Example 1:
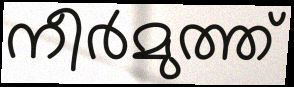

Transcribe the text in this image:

നീർമുത്ത്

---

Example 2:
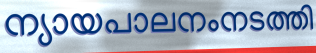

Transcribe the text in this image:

ന്യായപാലനംനടത്തി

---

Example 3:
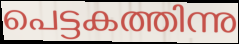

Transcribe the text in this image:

പെട്ടകത്തിന്നു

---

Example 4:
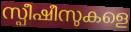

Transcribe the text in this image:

സ്പീഷീസുകളെ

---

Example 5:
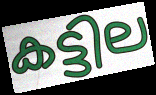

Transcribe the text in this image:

കട്ടില